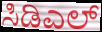
ಸಿಡಿಎಲ್